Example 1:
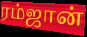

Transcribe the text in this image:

ரம்ஜான்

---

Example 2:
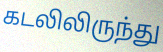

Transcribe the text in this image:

கடலிலிருந்து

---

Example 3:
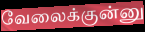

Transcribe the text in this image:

வேலைக்குன்னு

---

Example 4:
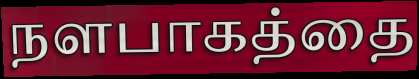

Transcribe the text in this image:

நளபாகத்தை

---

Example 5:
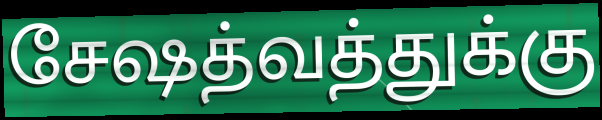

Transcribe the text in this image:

சேஷத்வத்துக்கு